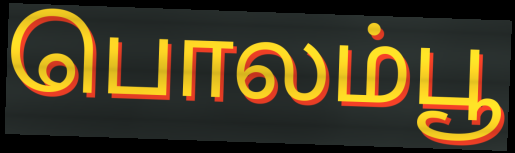
பொலம்பூ